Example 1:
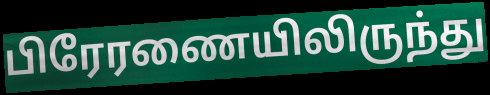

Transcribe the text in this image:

பிரேரணையிலிருந்து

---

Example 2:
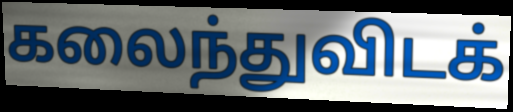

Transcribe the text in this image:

கலைந்துவிடக்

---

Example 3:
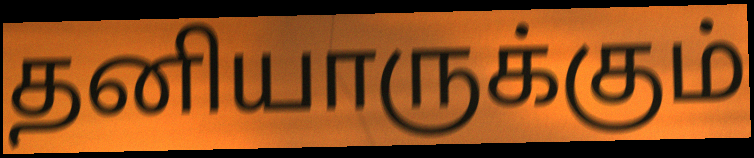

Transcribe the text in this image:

தனியாருக்கும்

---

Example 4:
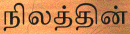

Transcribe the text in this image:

நிலத்தின்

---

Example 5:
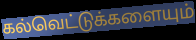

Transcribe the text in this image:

கல்வெட்டுக்களையும்